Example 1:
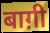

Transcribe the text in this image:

बाग़ी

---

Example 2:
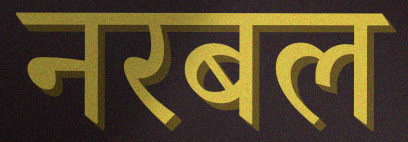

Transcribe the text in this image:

नरबल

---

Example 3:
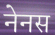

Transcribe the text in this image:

नेनस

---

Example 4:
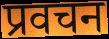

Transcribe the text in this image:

प्रवचन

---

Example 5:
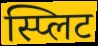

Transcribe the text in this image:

स्प्लिट